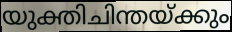
യുക്തിചിന്തയ്ക്കും